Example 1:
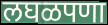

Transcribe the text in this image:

लघळपणा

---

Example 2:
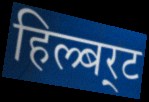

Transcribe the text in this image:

हिल्बर्ट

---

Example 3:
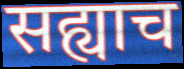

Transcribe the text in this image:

सह्याच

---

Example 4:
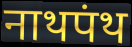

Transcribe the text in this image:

नाथपंथ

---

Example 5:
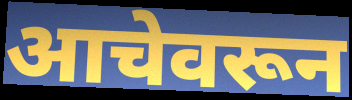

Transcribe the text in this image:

आचेवरून